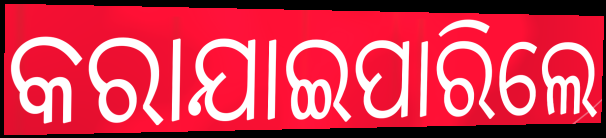
କରାଯାଇପାରିଲେ